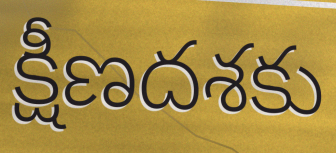
క్షీణదశకు